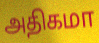
அதிகமா